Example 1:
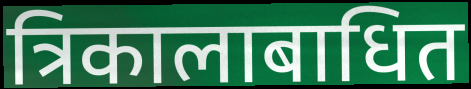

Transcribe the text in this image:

त्रिकालाबाधित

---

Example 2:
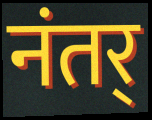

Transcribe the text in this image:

नंतर्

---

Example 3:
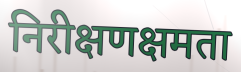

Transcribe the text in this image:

निरीक्षणक्षमता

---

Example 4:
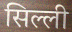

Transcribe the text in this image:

सिल्ली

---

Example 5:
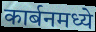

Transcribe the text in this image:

कार्बनमध्ये